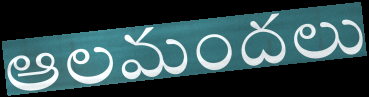
ఆలమందలు